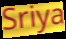
Sriya